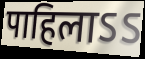
पाहिलाऽऽ